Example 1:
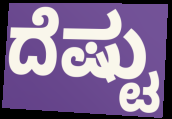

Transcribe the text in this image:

ದೆಷ್ಟು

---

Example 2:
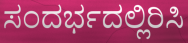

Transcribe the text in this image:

ಸಂದರ್ಭದಲ್ಲಿರಿಸಿ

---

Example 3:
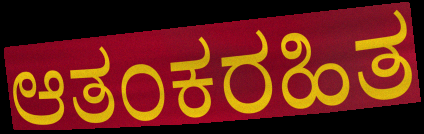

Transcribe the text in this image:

ಆತಂಕರಹಿತ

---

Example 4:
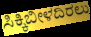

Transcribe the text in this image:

ಸಿಕ್ಕಿಬೀಳದಿರಲು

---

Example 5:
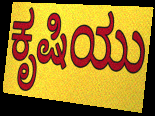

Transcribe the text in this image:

ಕೃಷಿಯು